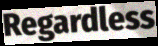
Regardless